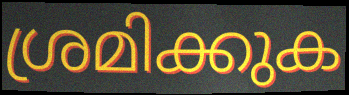
ശ്രമിക്കുക